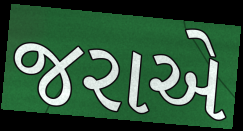
જરાએ